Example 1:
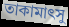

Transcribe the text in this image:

তাকামাৎসু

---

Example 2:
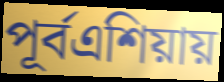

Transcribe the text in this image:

পূর্বএশিয়ায়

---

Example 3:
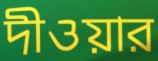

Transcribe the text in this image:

দীওয়ার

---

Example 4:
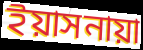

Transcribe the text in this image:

ইয়াসনায়া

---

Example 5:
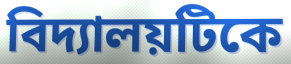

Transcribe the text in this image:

বিদ্যালয়টিকে